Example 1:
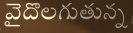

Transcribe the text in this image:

వైదొలగుతున్న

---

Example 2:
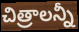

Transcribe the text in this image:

చిత్రాలన్నీ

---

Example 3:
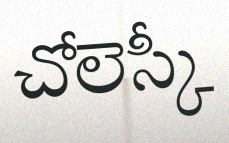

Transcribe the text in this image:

చోలెస్కీ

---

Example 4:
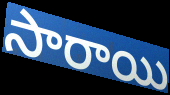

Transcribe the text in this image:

సారాయి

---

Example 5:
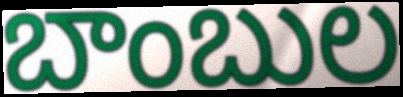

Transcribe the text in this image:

బాంబుల